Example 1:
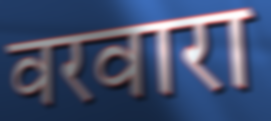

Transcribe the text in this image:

वरवारा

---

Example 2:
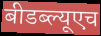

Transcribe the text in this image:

बीडब्ल्यूएच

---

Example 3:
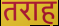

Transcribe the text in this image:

तराह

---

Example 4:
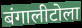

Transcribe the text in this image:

बंगालीटोला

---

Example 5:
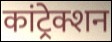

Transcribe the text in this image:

कांट्रेक्शन